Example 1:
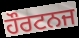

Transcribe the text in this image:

ਹੌਰਟਨਜ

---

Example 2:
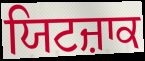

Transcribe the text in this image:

ਯਿਟਜ਼ਾਕ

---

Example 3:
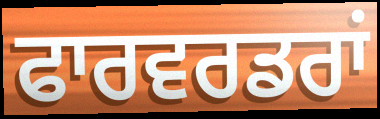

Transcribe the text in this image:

ਫਾਰਵਰਡਰਾਂ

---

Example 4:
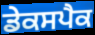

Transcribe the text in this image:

ਡੇਕਸਪੈਕ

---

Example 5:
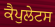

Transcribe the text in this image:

ਕੈਪੁਲੇਟਸ